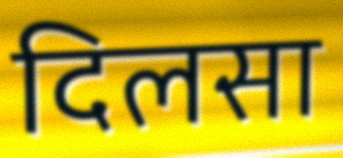
दिलसा